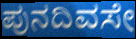
ಪುನದಿವಸೇ